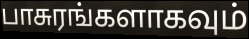
பாசுரங்களாகவும்